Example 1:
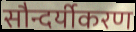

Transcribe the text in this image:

सौन्दर्यीकरण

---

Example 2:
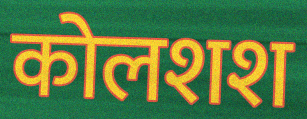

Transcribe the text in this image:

कोलशश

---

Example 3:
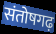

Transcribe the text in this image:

संतोषगढ़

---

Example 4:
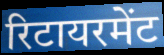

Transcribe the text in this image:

रिटायरमेंट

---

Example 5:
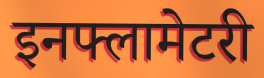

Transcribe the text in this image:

इनफ्लामेटरी